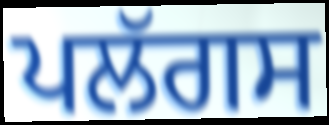
ਪਲੱਗਸ